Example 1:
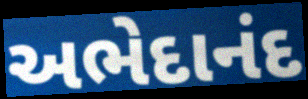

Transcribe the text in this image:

અભેદાનંદ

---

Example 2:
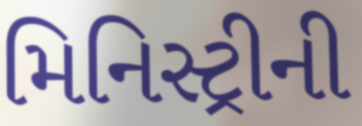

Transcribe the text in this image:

મિનિસ્ટ્રીની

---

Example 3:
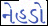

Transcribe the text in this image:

નેહડો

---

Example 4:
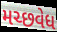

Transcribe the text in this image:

મચ્છવેધ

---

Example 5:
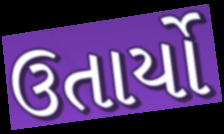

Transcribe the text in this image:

ઉતાર્યો